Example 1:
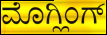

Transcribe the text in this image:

ಮೊಗ್ಲಿಂಗ್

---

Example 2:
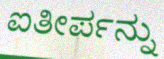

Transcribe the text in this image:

ಐತೀರ್ಪನ್ನು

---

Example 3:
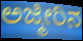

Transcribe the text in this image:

ಅಜ್ಮೀರಿನ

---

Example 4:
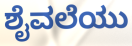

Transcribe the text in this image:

ಶೈವಲೆಯು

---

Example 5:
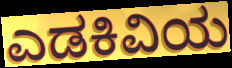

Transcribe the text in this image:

ಎಡಕಿವಿಯ